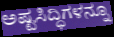
ಅಷ್ಟಸಿದ್ಧಿಗಳನ್ನೂ